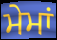
ਮੇਮਾਂ